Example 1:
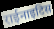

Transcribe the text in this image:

राईनाइटिस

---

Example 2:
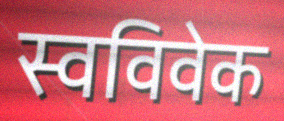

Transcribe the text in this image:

स्वविवेक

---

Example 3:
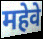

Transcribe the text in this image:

महेवे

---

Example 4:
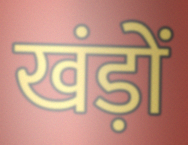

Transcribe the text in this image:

खंड़ों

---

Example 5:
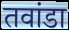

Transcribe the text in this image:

तवांडा